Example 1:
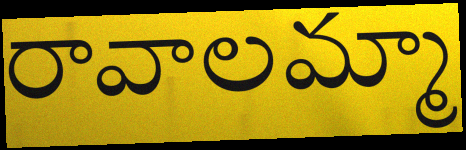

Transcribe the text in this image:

రావాలమ్మా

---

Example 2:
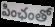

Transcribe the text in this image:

పింఛంతో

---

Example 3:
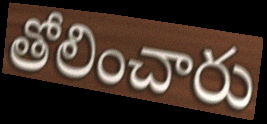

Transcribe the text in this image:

తోలించారు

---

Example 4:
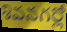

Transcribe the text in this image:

శివనగర్లో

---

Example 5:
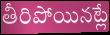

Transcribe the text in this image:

తీరిపోయినట్లే